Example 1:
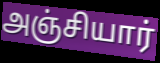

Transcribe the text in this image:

அஞ்சியார்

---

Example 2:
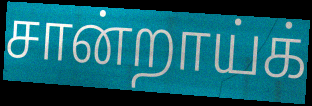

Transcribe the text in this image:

சான்றாய்க்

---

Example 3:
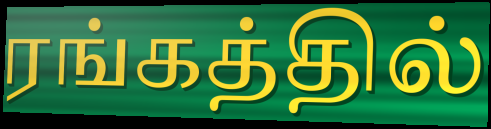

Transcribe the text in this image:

ரங்கத்தில்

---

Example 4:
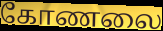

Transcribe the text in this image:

கோணலை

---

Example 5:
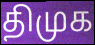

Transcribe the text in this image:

திமுக